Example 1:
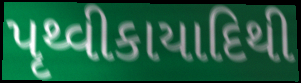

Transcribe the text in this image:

પૃથ્વીકાયાદિથી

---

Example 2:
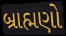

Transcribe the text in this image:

બ્રાહ્મણો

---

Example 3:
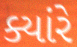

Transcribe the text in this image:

ક્યાંરે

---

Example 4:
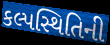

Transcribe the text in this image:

કલ્પસ્થિતિની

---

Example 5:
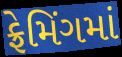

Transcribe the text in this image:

ફ્રેમિંગમાં